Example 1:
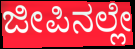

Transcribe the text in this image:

ಜೀಪಿನಲ್ಲೇ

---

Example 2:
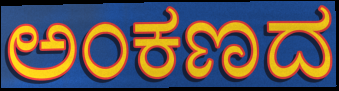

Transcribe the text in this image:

ಅಂಕಣದ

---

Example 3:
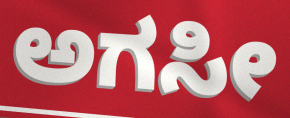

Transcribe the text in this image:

ಅಗಸೀ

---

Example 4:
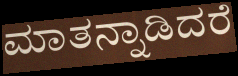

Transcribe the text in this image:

ಮಾತನ್ನಾಡಿದರೆ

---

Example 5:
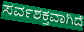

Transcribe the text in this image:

ಸರ್ವಶಕ್ತವಾಗಿದೆ